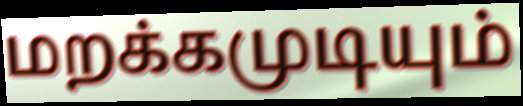
மறக்கமுடியும்